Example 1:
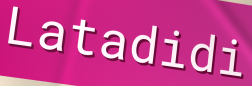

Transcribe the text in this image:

Latadidi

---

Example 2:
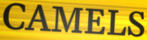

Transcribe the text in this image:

CAMELS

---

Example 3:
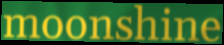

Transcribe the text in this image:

moonshine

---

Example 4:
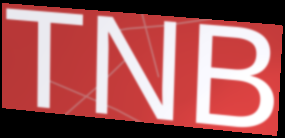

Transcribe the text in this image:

TNB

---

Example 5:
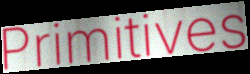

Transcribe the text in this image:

Primitives